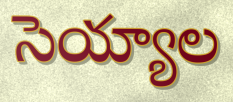
సెయ్యాల